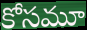
కోసమూ